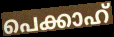
പെക്കാഹ്